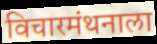
विचारमंथनाला